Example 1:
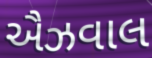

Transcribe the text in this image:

ઐઝવાલ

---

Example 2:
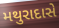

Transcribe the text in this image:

મથુરાદાસે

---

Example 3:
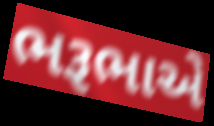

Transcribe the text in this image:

ભરૂભાએ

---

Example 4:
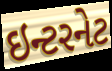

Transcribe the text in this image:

ઇન્ટરનેટ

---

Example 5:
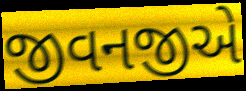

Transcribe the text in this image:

જીવનજીએ